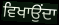
ਵਿਖਾਉਂਦਾ